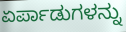
ಏರ್ಪಾಡುಗಳನ್ನು